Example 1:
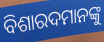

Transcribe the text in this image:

ବିଶାରଦମାନଙ୍କୁ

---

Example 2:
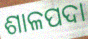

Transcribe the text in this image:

ଶାଳପଦା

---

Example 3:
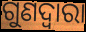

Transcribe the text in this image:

ଗୁଣଦ୍ଵାରା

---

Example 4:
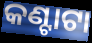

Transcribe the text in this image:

କଣ୍ଟାଟା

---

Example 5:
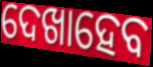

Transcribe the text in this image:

ଦେଖାହେବ